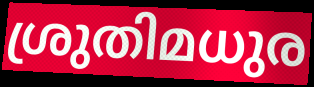
ശ്രുതിമധുര